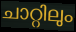
ചാറ്റിലും